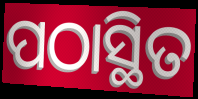
ପଠାସ୍ଥିତ